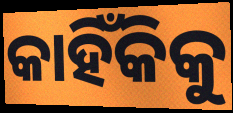
କାହିଁକିକୁ